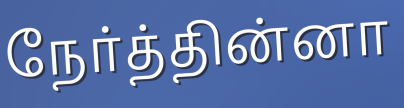
நேர்த்தின்னா